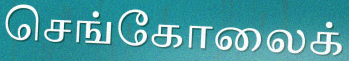
செங்கோலைக்